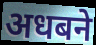
अधबने